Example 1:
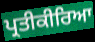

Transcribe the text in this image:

ਪ੍ਰਤੀਕੀਰਿਆ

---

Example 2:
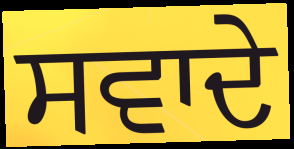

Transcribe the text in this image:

ਸਵਾਦੇ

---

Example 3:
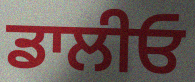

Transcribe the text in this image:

ਡਾਲੀਓ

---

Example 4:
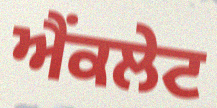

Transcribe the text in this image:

ਐਂਕਲੇਟ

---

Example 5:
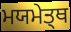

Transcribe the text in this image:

ਮਯਮੇਤ੍ਥ